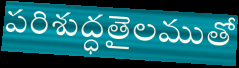
పరిశుద్ధతైలముతో